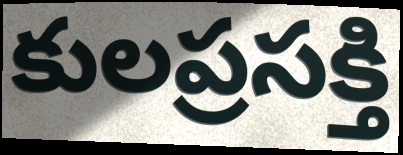
కులప్రసక్తి